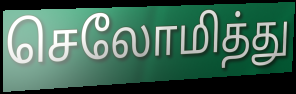
செலோமித்து